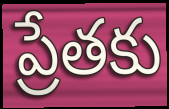
ప్రేతకు